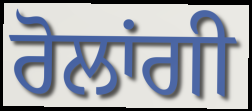
ਰੋਲਾਂਗੀ